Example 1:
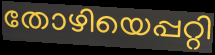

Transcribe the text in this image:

തോഴിയെപ്പറ്റി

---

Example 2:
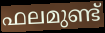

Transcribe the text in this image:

ഫലമുണ്ട്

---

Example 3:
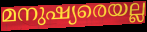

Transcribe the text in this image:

മനുഷ്യരെയല്ല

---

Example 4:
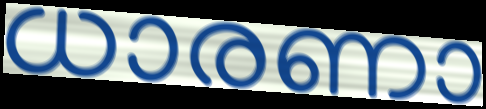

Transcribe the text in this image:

ധാരണാ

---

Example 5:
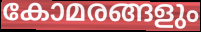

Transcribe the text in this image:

കോമരങ്ങളും